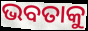
ଭବତାକୁ